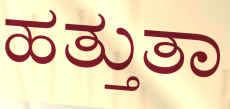
ಹತ್ತುತಾ